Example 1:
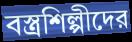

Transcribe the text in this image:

বস্ত্রশিল্পীদের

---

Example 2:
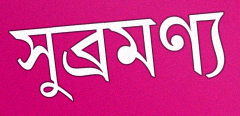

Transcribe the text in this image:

সুব্রমণ্য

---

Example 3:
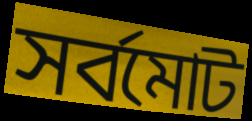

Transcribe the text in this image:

সর্বমোট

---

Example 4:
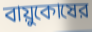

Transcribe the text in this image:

বায়ুকোষের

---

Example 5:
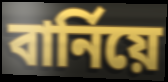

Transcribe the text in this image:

বার্নিয়ে